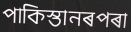
পাকিস্তানৰপৰা